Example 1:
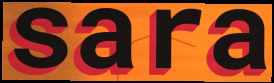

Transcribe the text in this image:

sara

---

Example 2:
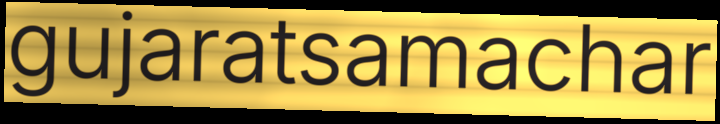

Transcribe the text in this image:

gujaratsamachar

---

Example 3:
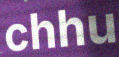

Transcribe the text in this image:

chhu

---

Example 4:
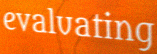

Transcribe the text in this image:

evaluating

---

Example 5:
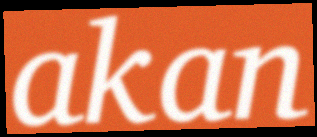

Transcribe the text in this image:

akan